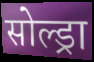
सोल्ड्रा